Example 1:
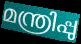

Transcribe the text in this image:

മന്ത്രിപ്പു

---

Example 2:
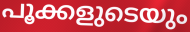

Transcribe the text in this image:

പൂക്കളുടെയും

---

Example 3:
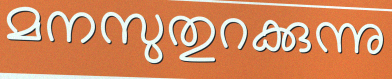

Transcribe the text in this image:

മനസുതുറക്കുന്നു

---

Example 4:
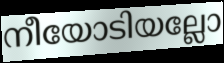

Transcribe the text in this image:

നീയോടിയല്ലോ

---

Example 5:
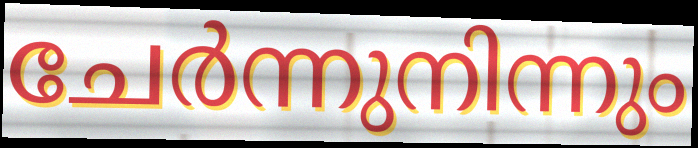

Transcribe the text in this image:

ചേർന്നുനിന്നും